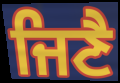
ਜਿਣੈ